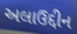
અલાઉદ્દીન